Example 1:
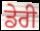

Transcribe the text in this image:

ਡੇਰੀ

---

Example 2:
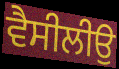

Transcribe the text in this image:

ਵੈਸੀਲੀਉ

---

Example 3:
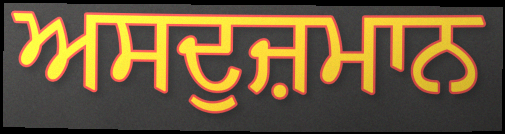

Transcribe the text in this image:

ਅਸਦੁਜ਼ਮਾਨ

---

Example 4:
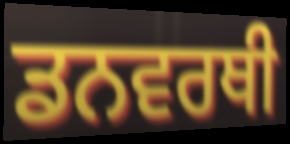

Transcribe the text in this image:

ਡਨਵਰਥੀ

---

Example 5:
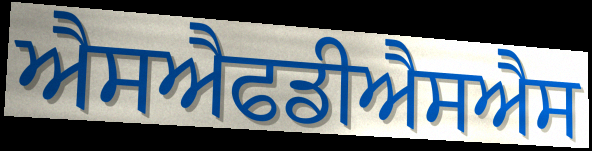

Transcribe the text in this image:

ਐਸਐਫਡੀਐਸਐਸ